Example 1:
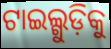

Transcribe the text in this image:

ଟାଇଲ୍ଗୁଡ଼ିକୁ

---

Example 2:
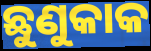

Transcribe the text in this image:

ଛୁଣୁକାକ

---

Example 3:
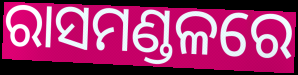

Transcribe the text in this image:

ରାସମଣ୍ଡଳରେ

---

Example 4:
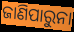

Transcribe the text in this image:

ଜାଣିପାରୁନା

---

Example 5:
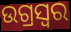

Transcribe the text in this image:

ଉଗ୍ରସ୍ୱର